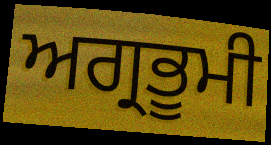
ਅਗ੍ਰਭੂਮੀ